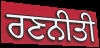
ਰਣਨੀਤੀ